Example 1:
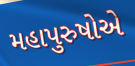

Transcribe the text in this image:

મહાપુરુષોએ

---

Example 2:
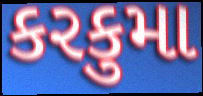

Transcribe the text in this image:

કરકુમા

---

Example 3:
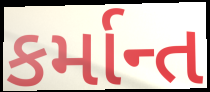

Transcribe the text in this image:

કર્માન્ત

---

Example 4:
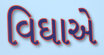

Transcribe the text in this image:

વિઘાએ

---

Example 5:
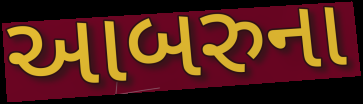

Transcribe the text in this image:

આબરુના